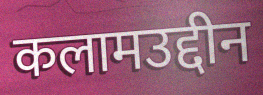
कलामउद्दीन